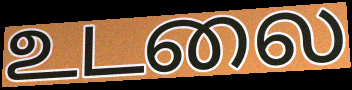
உடலை